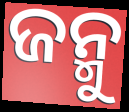
ଜନ୍ମୁ